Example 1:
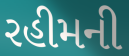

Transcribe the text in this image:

રહીમની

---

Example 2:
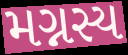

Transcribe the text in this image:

મગ્નસ્ય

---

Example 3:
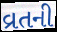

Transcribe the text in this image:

વ્રતની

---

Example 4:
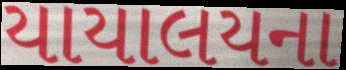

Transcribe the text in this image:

યાયાલયના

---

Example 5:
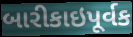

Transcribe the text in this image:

બારીકાઇપૂર્વક